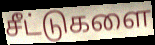
சீட்டுகளை